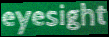
eyesight